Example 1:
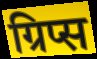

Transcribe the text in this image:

ग्रिप्स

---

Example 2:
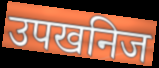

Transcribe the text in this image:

उपखनिज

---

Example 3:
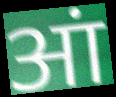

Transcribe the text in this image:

आं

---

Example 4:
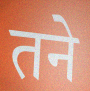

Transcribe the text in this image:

तने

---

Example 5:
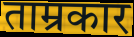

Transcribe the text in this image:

ताम्रकार